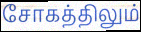
சோகத்திலும்